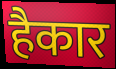
हैकार